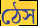
ঠেস